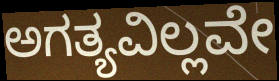
ಅಗತ್ಯವಿಲ್ಲವೇ